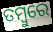
ତମ୍ବୁରେ